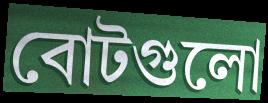
বোটগুলো